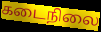
கடைநிலை